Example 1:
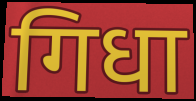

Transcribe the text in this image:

गिधा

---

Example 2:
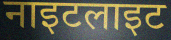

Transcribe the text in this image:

नाइटलाइट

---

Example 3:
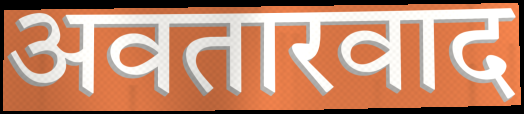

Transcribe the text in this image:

अवतारवाद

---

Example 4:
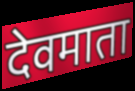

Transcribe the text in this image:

देवमाता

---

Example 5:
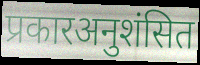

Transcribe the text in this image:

प्रकारअनुशंसित